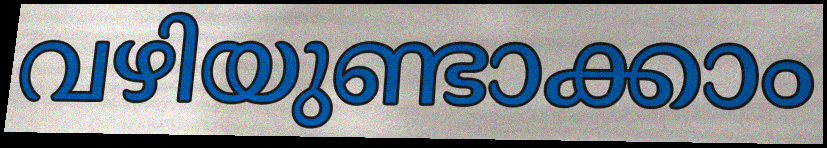
വഴിയുണ്ടാക്കാം